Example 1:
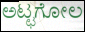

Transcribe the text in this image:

ಅಟ್ಟಗೋಲ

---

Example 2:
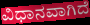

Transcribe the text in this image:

ವಿಧಾನವಾಗಿದೆ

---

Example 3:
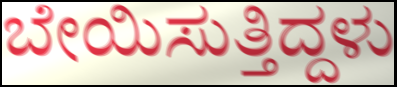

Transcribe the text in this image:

ಬೇಯಿಸುತ್ತಿದ್ದಳು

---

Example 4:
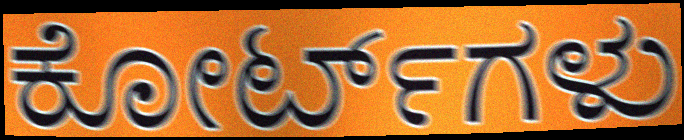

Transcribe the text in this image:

ಕೋರ್ಟ್‌ಗಳು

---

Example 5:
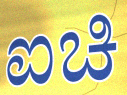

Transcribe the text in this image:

ಐಚಿ